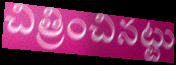
చిత్రించినట్టు